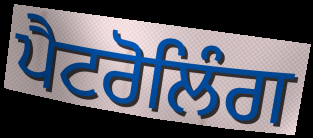
ਪੈਟਰੋਲਿੰਗ